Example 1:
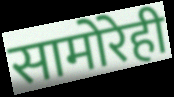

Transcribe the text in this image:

सामोरेही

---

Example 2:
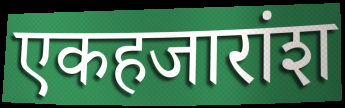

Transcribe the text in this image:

एकहजारांश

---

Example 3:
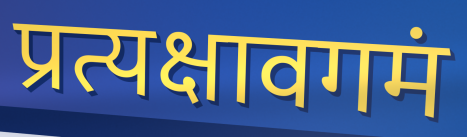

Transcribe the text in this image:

प्रत्यक्षावगमं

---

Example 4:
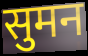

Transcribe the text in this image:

सुमन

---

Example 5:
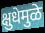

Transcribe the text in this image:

क्षुधेमुळे